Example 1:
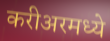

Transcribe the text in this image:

करीअरमध्ये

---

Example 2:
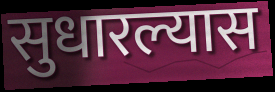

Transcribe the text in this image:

सुधारल्यास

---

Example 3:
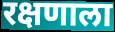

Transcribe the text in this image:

रक्षणाला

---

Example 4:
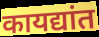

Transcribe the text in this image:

कायद्यांत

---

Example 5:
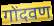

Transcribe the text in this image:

गोंदवण